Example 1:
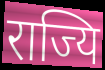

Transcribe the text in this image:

राज्यि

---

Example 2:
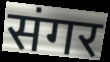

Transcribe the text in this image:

संगर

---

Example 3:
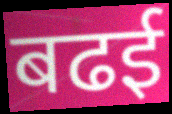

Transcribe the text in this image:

बढई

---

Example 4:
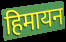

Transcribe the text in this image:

हिमायन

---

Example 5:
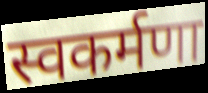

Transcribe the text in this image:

स्वकर्मणा